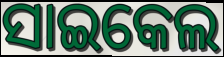
ସାଇକେଲ